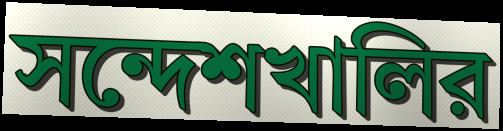
সন্দেশখালির